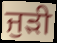
ਜੁੜੀ